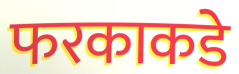
फरकाकडे